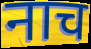
नाच